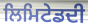
ਲਿਮਿਟੇਡਦੀ